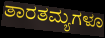
ತಾರತಮ್ಯಗಳೂ